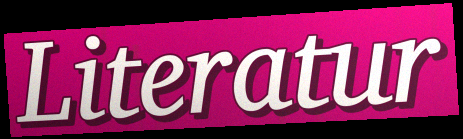
Literatur